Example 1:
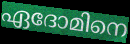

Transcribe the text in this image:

ഏദോമിനെ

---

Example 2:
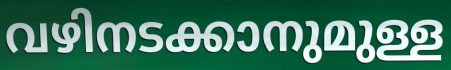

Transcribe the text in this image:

വഴിനടക്കാനുമുള്ള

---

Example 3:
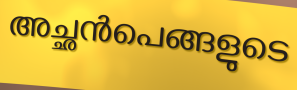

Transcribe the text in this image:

അച്ഛൻപെങ്ങളുടെ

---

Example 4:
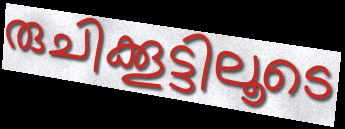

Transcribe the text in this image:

രുചിക്കൂട്ടിലൂടെ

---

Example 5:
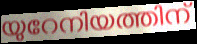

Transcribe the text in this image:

യുറേനിയത്തിന്